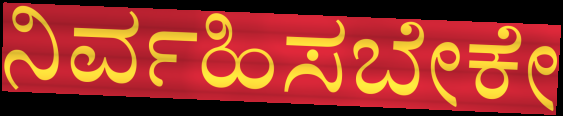
ನಿರ್ವಹಿಸಬೇಕೇ